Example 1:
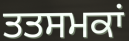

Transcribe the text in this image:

ਤਤਸਮਕਾਂ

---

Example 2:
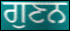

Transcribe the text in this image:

ਗੁਣਨ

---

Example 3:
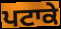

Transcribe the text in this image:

ਪਟਾਕੇ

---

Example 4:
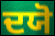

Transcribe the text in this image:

ਦਯੋ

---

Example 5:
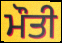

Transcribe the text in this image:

ਮੌਤੀ